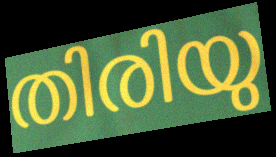
തിരിയു